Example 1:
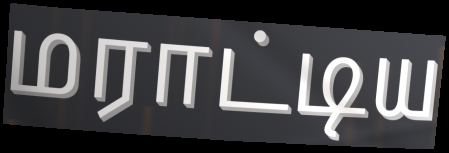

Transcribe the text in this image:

மராட்டிய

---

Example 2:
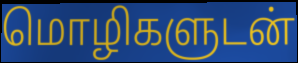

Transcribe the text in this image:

மொழிகளுடன்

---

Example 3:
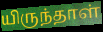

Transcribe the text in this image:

யிருந்தாள்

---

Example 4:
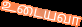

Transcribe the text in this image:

உடையவா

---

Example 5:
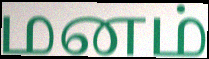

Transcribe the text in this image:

மனம்